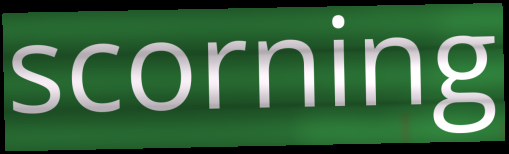
scorning